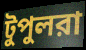
টুপুলরা